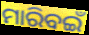
ମାରିବଇଁ